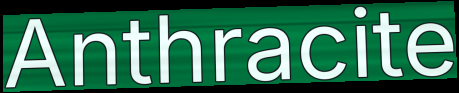
Anthracite